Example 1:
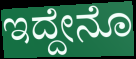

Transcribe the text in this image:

ಇದ್ದೇನೊ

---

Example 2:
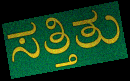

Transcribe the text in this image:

ಸತ್ತಿತು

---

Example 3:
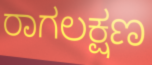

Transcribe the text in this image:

ರಾಗಲಕ್ಷಣ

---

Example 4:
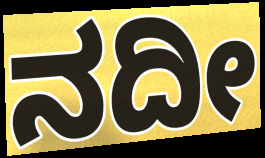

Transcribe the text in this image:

ನದೀ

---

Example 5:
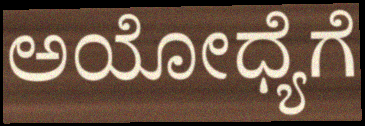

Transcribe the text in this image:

ಅಯೋಧ್ಯೆಗೆ